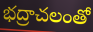
భద్రాచలంతో